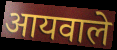
आयवाले